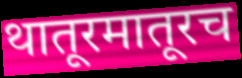
थातूरमातूरच